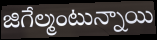
జిగేల్మంటున్నాయి